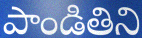
పాండితిని